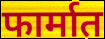
फार्मात